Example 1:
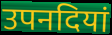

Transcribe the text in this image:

उपनदियां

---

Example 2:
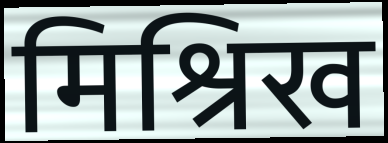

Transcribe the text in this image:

मिश्रिख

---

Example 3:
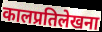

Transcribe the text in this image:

कालप्रतिलेखना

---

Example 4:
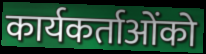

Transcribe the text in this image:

कार्यकर्ताओंको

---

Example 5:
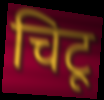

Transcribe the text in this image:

चिटू